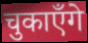
चुकाएँगे